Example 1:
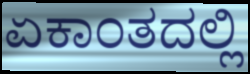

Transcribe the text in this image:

ಏಕಾಂತದಲ್ಲಿ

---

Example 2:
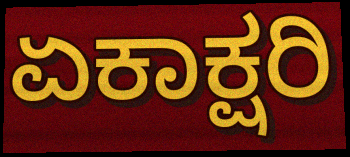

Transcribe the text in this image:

ಏಕಾಕ್ಷರಿ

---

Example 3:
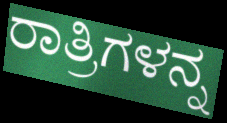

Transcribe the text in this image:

ರಾತ್ರಿಗಳನ್ನ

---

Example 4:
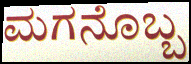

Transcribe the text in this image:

ಮಗನೊಬ್ಬ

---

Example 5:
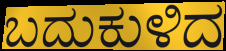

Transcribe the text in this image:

ಬದುಕುಳಿದ